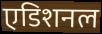
एडिशनल